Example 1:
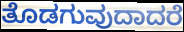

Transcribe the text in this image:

ತೊಡಗುವುದಾದರೆ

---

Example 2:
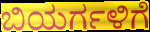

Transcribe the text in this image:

ಬಿಯರ್ಗಳಿಗೆ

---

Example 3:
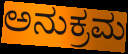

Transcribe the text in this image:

ಅನುಕ್ರಮ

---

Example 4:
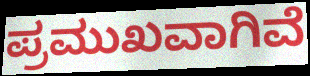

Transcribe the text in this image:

ಪ್ರಮುಖವಾಗಿವೆ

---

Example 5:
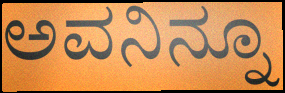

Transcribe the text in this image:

ಅವನಿನ್ನೂ